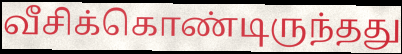
வீசிக்கொண்டிருந்தது